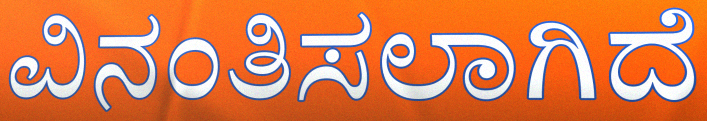
ವಿನಂತಿಸಲಾಗಿದೆ